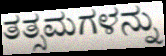
ತತ್ಸಮಗಳನ್ನು